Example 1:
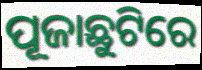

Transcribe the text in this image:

ପୂଜାଛୁଟିରେ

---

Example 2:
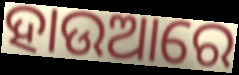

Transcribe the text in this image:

ହାଉଆରେ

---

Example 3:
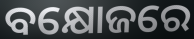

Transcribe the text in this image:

ବକ୍ଷୋଜରେ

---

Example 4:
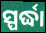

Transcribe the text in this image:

ସ୍ପର୍ଦ୍ଧା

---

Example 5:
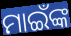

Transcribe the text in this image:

ମାଇଁଙ୍କ